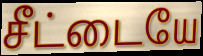
சீட்டையே